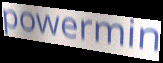
powermin